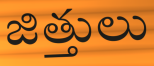
జిత్తులు